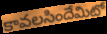
కావలసిందేమిటో